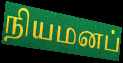
நியமனப்